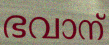
ഭവാന്